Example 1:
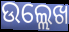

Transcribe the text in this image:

ଉଲ୍ଲେଖ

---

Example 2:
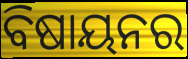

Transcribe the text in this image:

ବିଷାୟନର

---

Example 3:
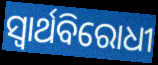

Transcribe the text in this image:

ସ୍ବାର୍ଥବିରୋଧୀ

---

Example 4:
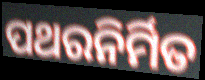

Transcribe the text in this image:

ପଥରନିର୍ମିତ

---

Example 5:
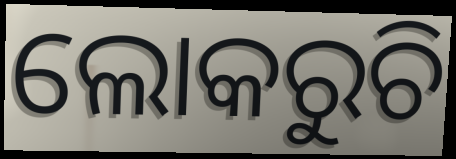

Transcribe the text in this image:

ଲୋକରୁଚି